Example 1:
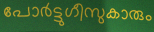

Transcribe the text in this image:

പോർട്ടുഗീസുകാരും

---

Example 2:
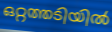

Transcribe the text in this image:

ഒറ്റത്തടിയിൽ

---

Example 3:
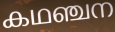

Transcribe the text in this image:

കഥഞ്ചന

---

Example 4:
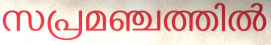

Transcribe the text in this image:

സപ്രമഞ്ചത്തിൽ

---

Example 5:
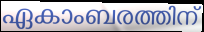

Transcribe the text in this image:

ഏകാംബരത്തിന്